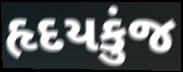
હૃદયકુંજ